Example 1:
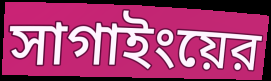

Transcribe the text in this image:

সাগাইংয়ের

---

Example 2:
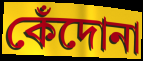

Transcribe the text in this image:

কেঁদোনা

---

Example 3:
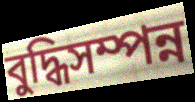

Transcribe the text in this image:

বুদ্ধিসম্পন্ন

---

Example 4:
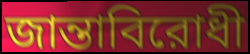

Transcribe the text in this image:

জান্তাবিরোধী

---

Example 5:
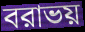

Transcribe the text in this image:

বরাভয়